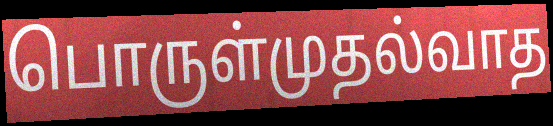
பொருள்முதல்வாத